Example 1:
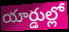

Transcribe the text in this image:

యార్డుల్లో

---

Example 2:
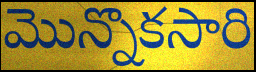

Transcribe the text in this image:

మొన్నొకసారి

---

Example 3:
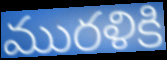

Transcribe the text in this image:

మురళికి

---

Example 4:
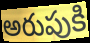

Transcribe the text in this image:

అరుపుకి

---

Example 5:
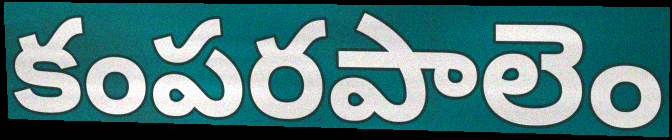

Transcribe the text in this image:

కంపరపాలెం